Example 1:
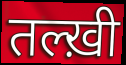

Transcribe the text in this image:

तल्ख़ी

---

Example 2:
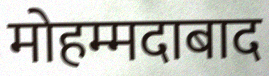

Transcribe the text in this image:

मोहम्मदाबाद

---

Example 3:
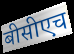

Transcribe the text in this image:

बीसीएच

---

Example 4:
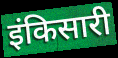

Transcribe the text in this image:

इंकिसारी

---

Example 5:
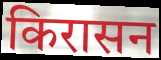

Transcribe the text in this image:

किरासन